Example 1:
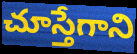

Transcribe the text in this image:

చూస్తేగాని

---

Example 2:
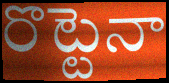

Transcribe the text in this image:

రొట్టెనా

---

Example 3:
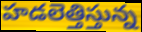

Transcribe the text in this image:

హడలెత్తిస్తున్న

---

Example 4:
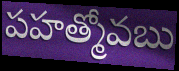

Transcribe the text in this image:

పహత్మోవబు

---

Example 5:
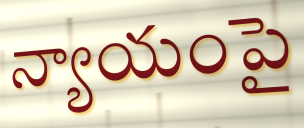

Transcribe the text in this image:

న్యాయంపై